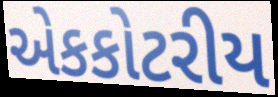
એકકોટરીય